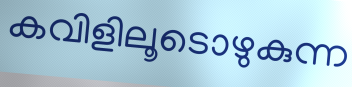
കവിളിലൂടൊഴുകുന്ന